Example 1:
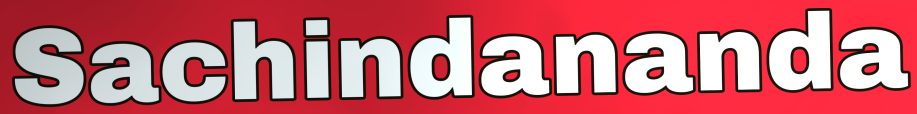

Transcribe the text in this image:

Sachindananda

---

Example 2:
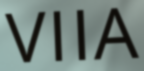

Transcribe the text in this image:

VIIA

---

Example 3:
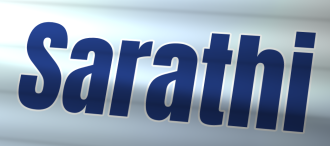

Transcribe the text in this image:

Sarathi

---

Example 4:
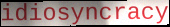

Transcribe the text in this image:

idiosyncracy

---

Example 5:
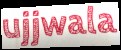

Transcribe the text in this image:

ujjwala